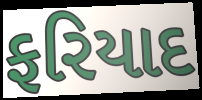
ફરિયાદ